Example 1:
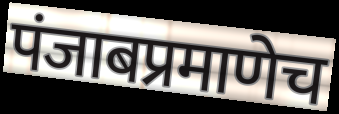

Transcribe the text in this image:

पंजाबप्रमाणेच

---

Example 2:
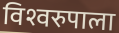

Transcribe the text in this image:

विश्वरुपाला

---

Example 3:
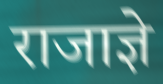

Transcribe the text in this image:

राजाज्ञे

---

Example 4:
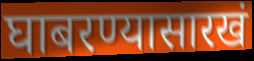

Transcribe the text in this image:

घाबरण्यासारखं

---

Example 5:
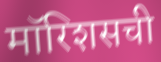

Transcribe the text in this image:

मॉरिशसची